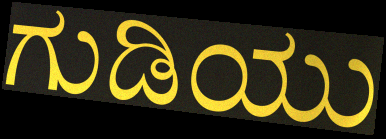
ಗುಡಿಯು